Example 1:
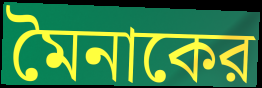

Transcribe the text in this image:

মৈনাকের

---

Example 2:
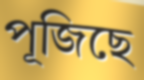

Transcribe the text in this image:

পূজিছে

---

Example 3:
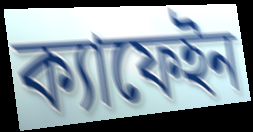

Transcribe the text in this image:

ক্যাফেইন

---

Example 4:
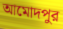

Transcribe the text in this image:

আমোদপুর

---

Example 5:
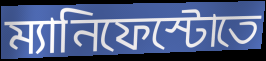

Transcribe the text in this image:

ম্যানিফেস্টোতে